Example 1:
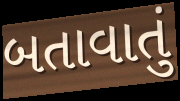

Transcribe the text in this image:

બતાવાતું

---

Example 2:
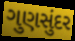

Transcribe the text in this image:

ગુણસુંદર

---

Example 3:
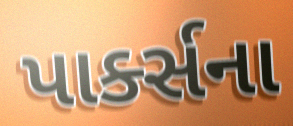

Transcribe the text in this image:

પાર્ક્સના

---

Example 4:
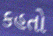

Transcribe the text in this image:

કહતો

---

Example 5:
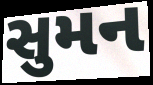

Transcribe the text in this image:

સુમન